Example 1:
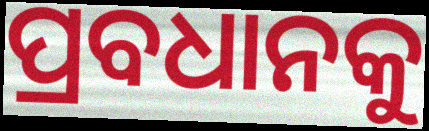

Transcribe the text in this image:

ପ୍ରବଧାନକୁ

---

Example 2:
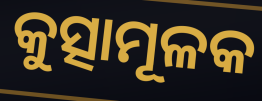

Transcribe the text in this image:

କୁତ୍ସାମୂଳକ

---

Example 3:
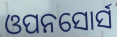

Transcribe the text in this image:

ଓପନସୋର୍ସ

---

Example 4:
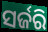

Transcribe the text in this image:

ସର୍ଜରି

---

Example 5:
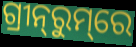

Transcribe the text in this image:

ଗ୍ରୀନ୍‌ରୁମ୍‌ରେ